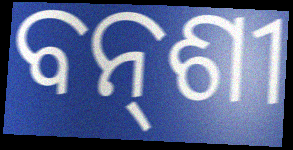
ବନ୍‍ଶୀ